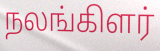
நலங்கிளர்